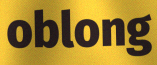
oblong